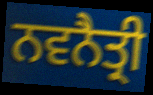
ਨਵਨੈਤ੍ਰੀ